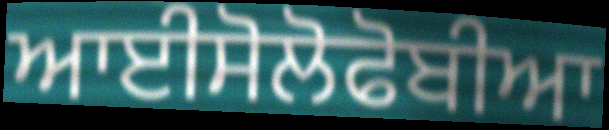
ਆਈਸੋਲੋਫੋਬੀਆ